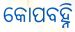
କୋପବହ୍ନି